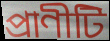
প্রাণীটি